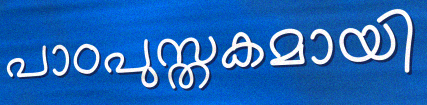
പാഠപുസ്തകമായി